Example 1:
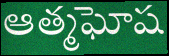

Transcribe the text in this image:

ఆత్మఘోష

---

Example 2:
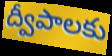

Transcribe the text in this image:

ద్వీపాలకు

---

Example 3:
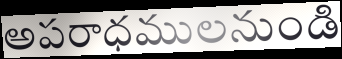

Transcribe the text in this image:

అపరాధములనుండి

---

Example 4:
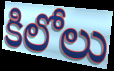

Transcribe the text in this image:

కిలోలు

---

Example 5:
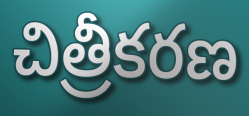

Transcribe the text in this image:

చిత్రీకరణ